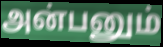
அன்பனும்